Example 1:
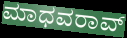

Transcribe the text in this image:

ಮಾಧವರಾವ್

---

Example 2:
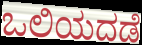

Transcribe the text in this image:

ಒಲಿಯದಡೆ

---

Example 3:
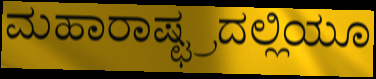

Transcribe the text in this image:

ಮಹಾರಾಷ್ಟ್ರದಲ್ಲಿಯೂ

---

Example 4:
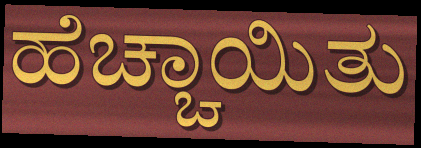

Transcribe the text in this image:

ಹೆಚ್ಚಾಯಿತು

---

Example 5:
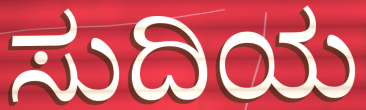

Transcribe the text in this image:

ಸುದಿಯ